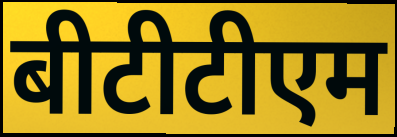
बीटीटीएम